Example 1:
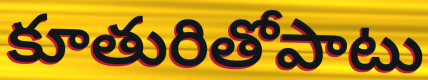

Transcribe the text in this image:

కూతురితోపాటు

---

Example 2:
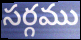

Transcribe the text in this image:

సర్గము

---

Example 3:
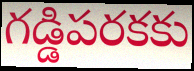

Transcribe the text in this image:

గడ్డిపరకకు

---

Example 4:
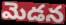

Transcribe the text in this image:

మెడన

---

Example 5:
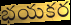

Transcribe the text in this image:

భయకర